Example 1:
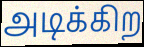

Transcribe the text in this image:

அடிக்கிற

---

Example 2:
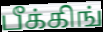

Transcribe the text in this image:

பீக்கிங்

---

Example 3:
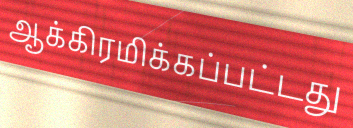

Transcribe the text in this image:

ஆக்கிரமிக்கப்பட்டது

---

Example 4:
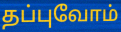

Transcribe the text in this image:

தப்புவோம்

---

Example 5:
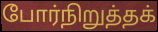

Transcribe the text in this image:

போர்நிறுத்தக்